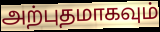
அற்புதமாகவும்